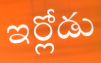
ఇర్లోడు